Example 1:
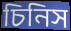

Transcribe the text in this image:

চিনিস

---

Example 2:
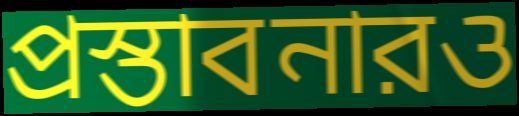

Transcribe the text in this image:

প্রস্তাবনারও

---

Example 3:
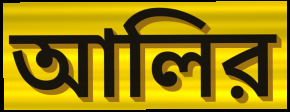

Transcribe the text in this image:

আলির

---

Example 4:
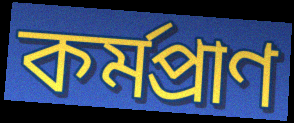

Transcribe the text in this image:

কর্মপ্রাণ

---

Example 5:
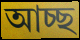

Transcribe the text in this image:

আচ্ছ